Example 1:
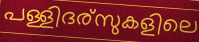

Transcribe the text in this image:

പള്ളിദര്സുകളിലെ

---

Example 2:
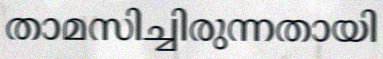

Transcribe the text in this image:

താമസിച്ചിരുന്നതായി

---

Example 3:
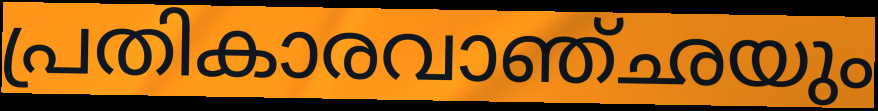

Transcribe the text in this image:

പ്രതികാരവാഞ്ഛയും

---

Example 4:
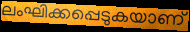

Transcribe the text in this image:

ലംഘിക്കപ്പെടുകയാണ്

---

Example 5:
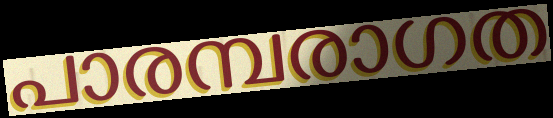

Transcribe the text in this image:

പാരമ്പരാഗത